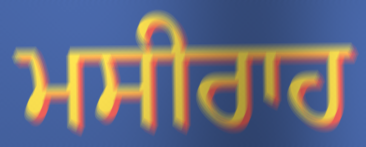
ਮਸੀਰਾਹ